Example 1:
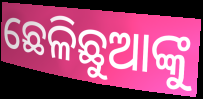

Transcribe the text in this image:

ଛେଳିଛୁଆଙ୍କୁ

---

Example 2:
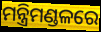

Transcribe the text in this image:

ମନ୍ତ୍ରିମଣ୍ଡଳରେ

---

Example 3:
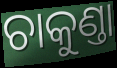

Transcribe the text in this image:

ଚାକୁଣ୍ତା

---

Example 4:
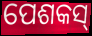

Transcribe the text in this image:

ପେଶକସ୍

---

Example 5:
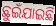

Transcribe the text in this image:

ଛୁଇଁଯାଇଛି